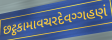
છટ્ઠકામાવચરદેવગ્ગહણં